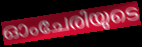
ഓംചേരിയുടെ